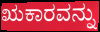
ಋಕಾರವನ್ನು